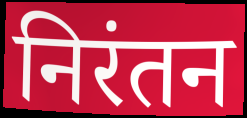
निरंतन